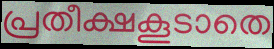
പ്രതീക്ഷകൂടാതെ